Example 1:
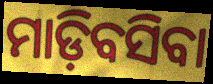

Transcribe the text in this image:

ମାଡ଼ିବସିବା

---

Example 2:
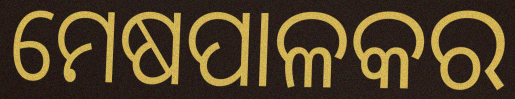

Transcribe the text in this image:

ମେଷପାଳକର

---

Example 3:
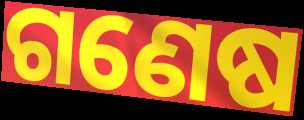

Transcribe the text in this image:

ଗଣେଷ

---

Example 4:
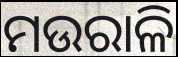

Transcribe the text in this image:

ମଉରାଳି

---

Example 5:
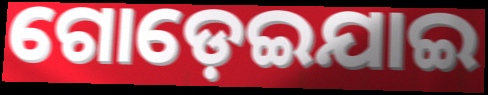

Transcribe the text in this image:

ଗୋଡ଼େଇଯାଇ